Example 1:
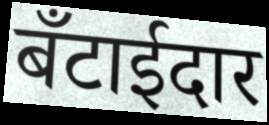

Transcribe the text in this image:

बँटाईदार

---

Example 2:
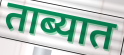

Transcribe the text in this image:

ताब्यात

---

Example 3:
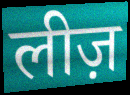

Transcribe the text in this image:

लीज़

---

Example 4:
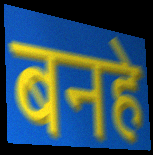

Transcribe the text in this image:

बनहे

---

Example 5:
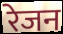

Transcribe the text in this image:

रेजन